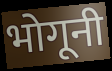
भोगूनी